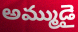
అమ్ముడై